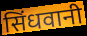
सिंधवानी